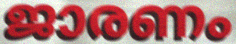
ജാരണം